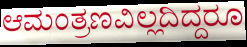
ಆಮಂತ್ರಣವಿಲ್ಲದಿದ್ದರೂ